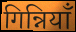
गिन्नियाँ